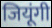
जियूंगी